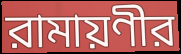
রামায়ণীর